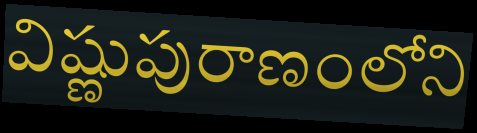
విష్ణుపురాణంలోని